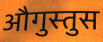
औगुस्तुस